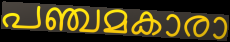
പഞ്ചമകാരാ